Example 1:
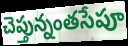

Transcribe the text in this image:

చెప్తున్నంతసేపూ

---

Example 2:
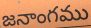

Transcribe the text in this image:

జనాంగము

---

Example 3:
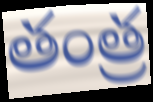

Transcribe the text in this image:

తంత్ర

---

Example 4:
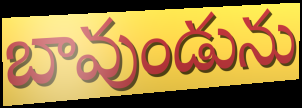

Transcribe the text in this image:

బావుండును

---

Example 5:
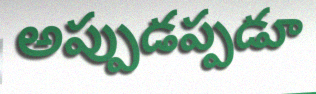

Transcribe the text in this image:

అప్పుడప్పడూ